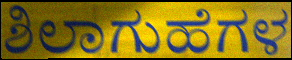
ಶಿಲಾಗುಹೆಗಳ